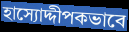
হাস্যোদ্দীপকভাবে